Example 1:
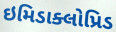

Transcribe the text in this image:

ઇમિડાક્લોપ્રિડ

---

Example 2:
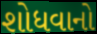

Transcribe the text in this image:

શોધવાનો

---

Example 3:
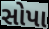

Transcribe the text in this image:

સોપા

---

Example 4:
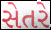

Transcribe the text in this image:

સેતરે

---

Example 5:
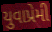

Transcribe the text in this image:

યુવાપ્રેમી